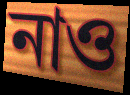
নাও